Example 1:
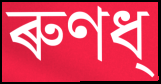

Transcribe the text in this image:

ৰুণধ্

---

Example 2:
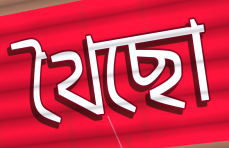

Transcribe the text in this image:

থৈছো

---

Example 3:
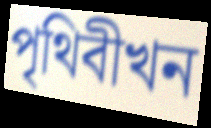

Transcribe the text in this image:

পৃথিবীখন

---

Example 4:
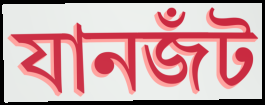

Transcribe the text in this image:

যানজঁট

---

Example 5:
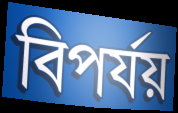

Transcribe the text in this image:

বিপৰ্যয়